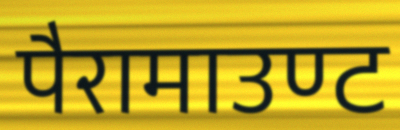
पैरामाउण्ट